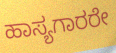
ಹಾಸ್ಯಗಾರರೇ